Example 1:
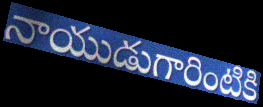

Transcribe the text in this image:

నాయుడుగారింటికి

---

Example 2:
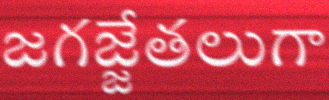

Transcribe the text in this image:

జగజ్జేతలుగా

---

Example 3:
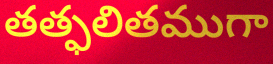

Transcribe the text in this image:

తత్ఫలితముగా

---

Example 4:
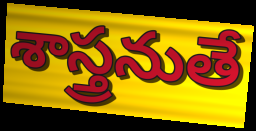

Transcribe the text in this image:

శాస్త్రనుతే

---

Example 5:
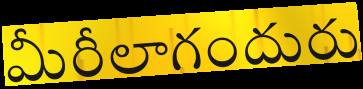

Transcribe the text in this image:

మీరీలాగందురు